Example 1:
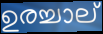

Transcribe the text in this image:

ഉരച്ചാല്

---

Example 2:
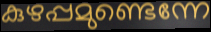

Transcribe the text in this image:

കുഴപ്പമുണ്ടെന്നേ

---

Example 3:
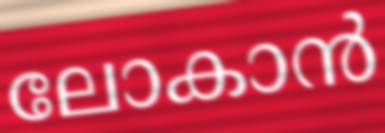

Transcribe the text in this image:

ലോകാൻ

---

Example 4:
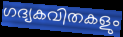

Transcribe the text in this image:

ഗദ്യകവിതകളും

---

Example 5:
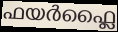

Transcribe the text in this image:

ഫയർഫ്ലൈ